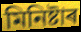
মিনিষ্টাৰ